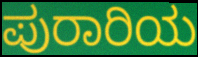
ಪುರಾರಿಯ